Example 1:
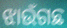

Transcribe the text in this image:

ଝାଉଁଗଛ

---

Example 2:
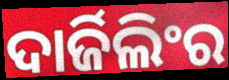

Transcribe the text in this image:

ଦାର୍ଜିଲିଂର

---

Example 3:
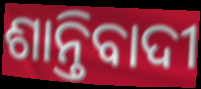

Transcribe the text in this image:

ଶାନ୍ତିବାଦୀ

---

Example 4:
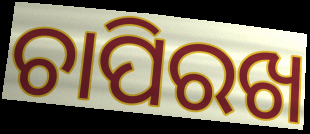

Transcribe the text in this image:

ଚାପିରଖ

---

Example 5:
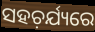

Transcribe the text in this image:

ସହଚ଼ର୍ଯ୍ୟରେ